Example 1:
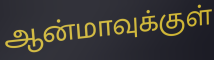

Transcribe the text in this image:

ஆன்மாவுக்குள்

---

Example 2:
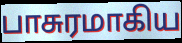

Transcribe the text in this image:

பாசுரமாகிய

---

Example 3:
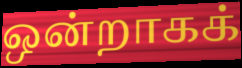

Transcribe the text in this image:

ஒன்றாகக்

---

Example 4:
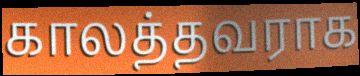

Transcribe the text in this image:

காலத்தவராக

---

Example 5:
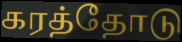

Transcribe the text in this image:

கரத்தோடு